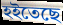
হইতেছে